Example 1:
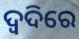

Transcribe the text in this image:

ଦ୍ଵଦିରେ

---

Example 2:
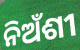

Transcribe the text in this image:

ନିଅଁଶୀ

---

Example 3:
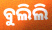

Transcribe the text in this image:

ବୁଲିଲି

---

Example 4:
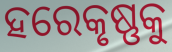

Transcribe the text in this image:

ହରେକୃଷ୍ଣକୁ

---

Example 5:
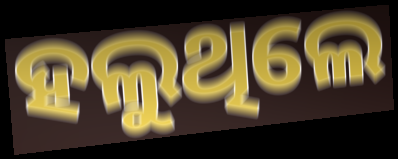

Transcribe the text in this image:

ହଲୁଥିଲେ